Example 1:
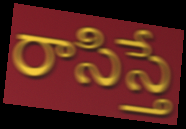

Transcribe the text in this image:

రాసిస్తే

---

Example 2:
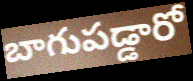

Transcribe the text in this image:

బాగుపడ్డారో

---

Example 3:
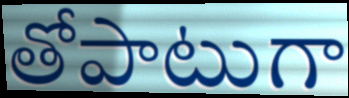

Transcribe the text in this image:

తోపాటుగా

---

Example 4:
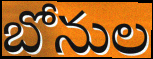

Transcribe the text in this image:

బోనుల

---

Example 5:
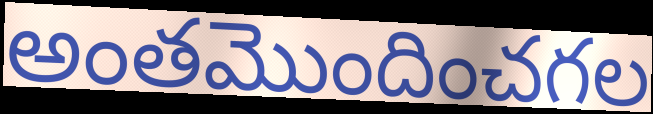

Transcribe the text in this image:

అంతమొందించగల